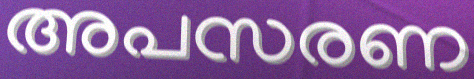
അപസരണ